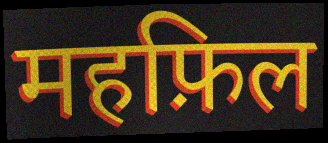
महफ़िल